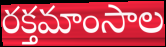
రక్తమాంసాల